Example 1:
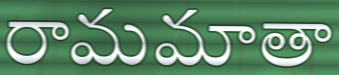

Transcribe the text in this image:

రామమాతా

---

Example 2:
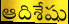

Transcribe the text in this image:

ఆదిశేషు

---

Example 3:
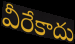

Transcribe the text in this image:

వీరేకాదు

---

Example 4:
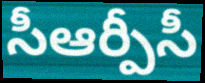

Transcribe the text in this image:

సీఆర్పీసీ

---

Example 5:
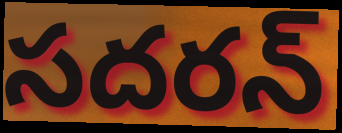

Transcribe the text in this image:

సదరన్